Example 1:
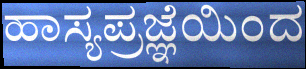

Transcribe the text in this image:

ಹಾಸ್ಯಪ್ರಜ್ಞೆಯಿಂದ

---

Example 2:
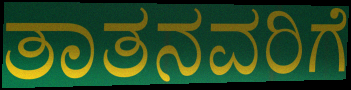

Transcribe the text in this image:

ತಾತನವರಿಗೆ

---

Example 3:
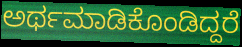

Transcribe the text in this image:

ಅರ್ಥಮಾಡಿಕೊಂಡಿದ್ದರೆ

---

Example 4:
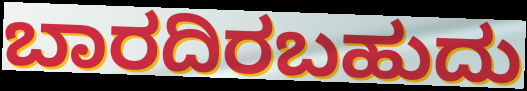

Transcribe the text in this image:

ಬಾರದಿರಬಹುದು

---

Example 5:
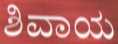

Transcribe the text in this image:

ಶಿವಾಯ